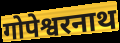
गोपेश्वरनाथ